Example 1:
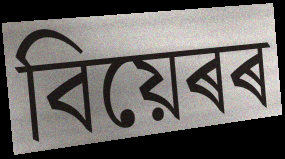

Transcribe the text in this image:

বিয়েৰৰ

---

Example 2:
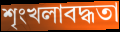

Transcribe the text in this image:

শৃংখলাবদ্ধতা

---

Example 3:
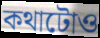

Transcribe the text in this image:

কথাটোও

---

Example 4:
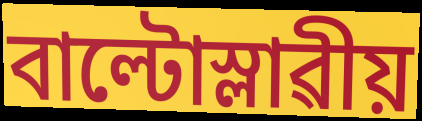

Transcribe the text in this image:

বাল্টোস্লাৱীয়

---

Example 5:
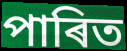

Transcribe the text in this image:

পাৰিত